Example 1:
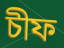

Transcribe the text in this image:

চীফ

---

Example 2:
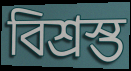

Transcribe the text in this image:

বিশ্রস্ত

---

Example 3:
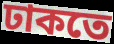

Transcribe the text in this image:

ঢাকতে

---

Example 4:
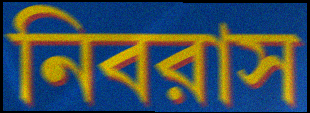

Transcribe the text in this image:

নিবরাস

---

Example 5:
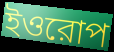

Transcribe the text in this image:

ইওরোপ